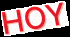
HOY